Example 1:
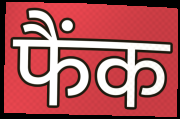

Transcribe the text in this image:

फैंक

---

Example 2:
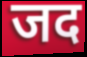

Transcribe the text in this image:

जद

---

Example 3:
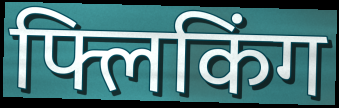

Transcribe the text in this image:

फ्लिकिंग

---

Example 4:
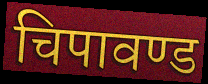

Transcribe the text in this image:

चिपावण्ड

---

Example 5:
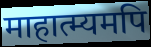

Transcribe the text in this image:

माहात्म्यमपि